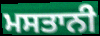
ਮਸਤਾਨੀ